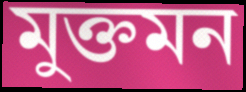
মুক্তমন